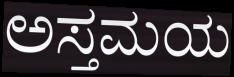
ಅಸ್ತಮಯ